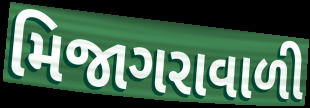
મિજાગરાવાળી